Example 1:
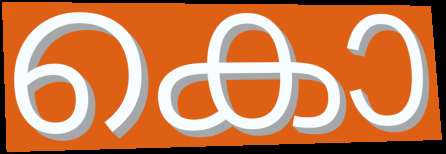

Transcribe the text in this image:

കൊ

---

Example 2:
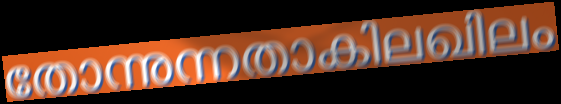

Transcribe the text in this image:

തോന്നുന്നതാകിലഖിലം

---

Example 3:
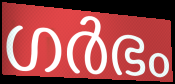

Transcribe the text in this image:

ഗർഭം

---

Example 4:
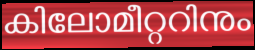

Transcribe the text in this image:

കിലോമീറ്ററിനും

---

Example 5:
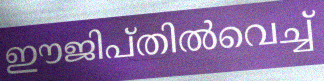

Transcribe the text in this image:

ഈജിപ്തിൽവെച്ച്